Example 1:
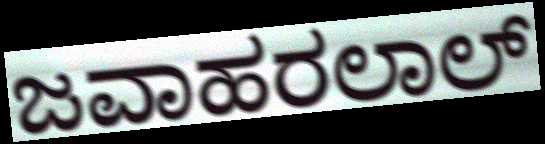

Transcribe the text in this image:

ಜವಾಹರಲಾಲ್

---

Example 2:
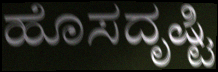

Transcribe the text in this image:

ಹೊಸದೃಷ್ಟಿ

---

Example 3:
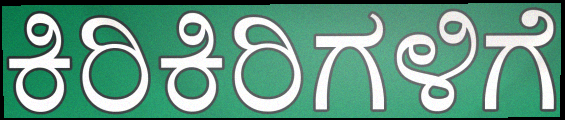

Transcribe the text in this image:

ಕಿರಿಕಿರಿಗಳಿಗೆ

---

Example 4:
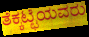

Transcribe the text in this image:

ತೆಕ್ಕಟ್ಟೆಯವರು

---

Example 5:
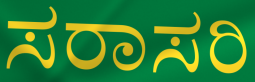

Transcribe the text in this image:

ಸರಾಸರಿ